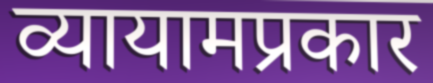
व्यायामप्रकार